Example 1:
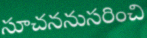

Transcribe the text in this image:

సూచననుసరించి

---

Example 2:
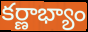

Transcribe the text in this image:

కర్ణాభ్యాం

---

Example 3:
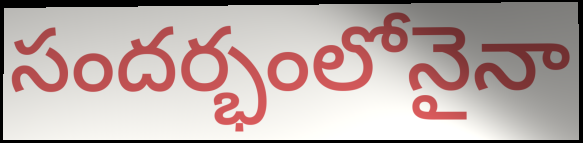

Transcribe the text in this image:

సందర్భంలోనైనా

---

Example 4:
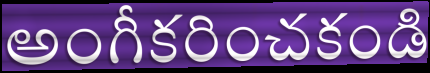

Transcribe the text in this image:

అంగీకరించకండి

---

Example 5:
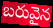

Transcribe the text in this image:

బరువైన